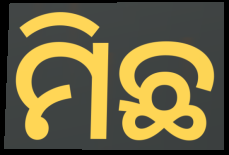
ମିଛ